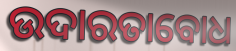
ଉଦାରତାବୋଧ